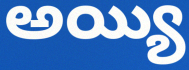
అయ్యి